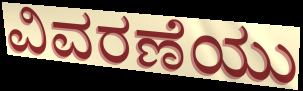
ವಿವರಣೆಯು